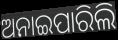
ଅନାଇପାରିଲି